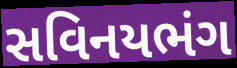
સવિનયભંગ